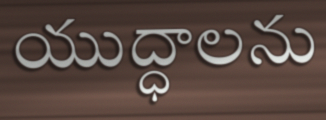
యుద్ధాలను